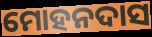
ମୋହନଦାସ